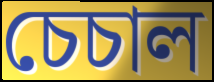
চেচাল